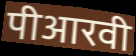
पीआरवी